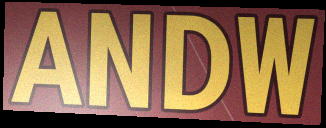
ANDW